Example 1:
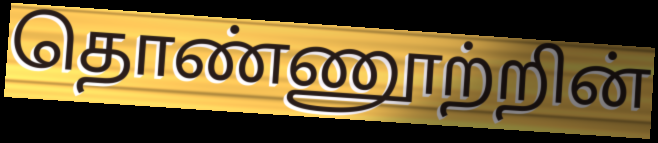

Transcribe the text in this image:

தொண்ணூற்றின்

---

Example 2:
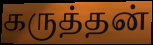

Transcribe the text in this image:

கருத்தன்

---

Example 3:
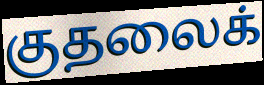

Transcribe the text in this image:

குதலைக்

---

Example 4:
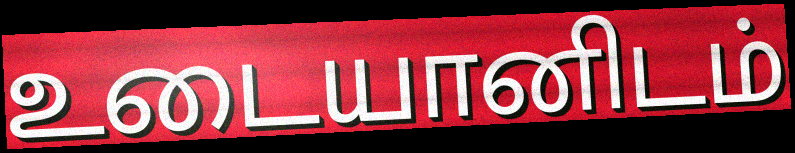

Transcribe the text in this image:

உடையானிடம்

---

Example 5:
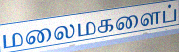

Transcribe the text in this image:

மலைமகளைப்